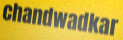
chandwadkar